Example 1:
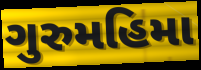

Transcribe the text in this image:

ગુરુમહિમા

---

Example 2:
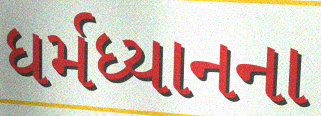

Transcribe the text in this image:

ધર્મધ્યાનના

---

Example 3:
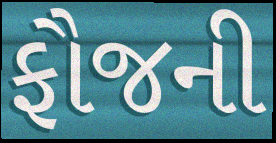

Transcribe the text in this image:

ફૌજની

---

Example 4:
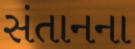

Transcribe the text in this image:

સંતાનના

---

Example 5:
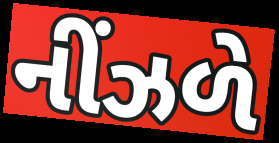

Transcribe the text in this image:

નીંઝળે